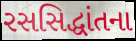
રસસિદ્ધાંતના